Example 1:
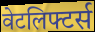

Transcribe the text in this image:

वेटलिफ्टर्स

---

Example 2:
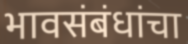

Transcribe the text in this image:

भावसंबंधांचा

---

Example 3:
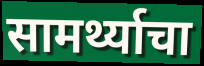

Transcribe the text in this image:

सामर्थ्याचा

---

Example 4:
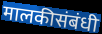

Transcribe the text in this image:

मालकीसंबंधी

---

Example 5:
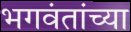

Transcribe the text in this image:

भगवंतांच्या